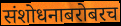
संशोधनाबरोबरच